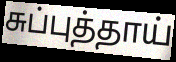
சுப்புத்தாய்